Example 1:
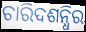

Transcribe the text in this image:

ଚାରିଦଶନ୍ଧିର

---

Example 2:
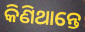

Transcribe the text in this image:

କିଣିଥାନ୍ତେ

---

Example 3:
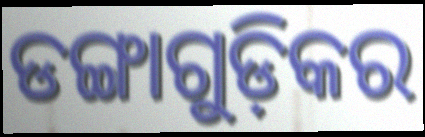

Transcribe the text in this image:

ଡଙ୍ଗାଗୁଡ଼ିକର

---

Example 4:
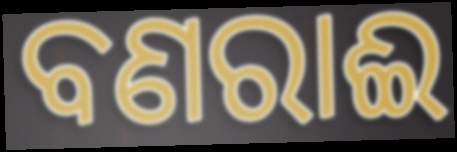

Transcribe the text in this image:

ବଣରାଈ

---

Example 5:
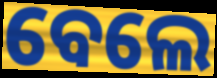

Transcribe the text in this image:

ବେଲେ